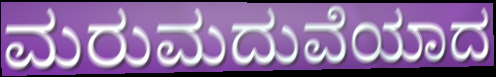
ಮರುಮದುವೆಯಾದ